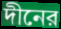
দীনের